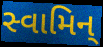
સ્વામિન્